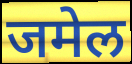
जमेल